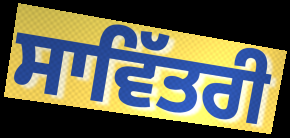
ਸਾਵਿੱਤਰੀ